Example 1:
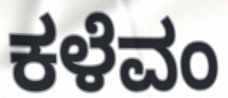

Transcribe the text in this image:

ಕಳೆವಂ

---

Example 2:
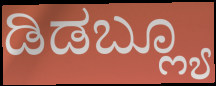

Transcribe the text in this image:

ಡಿಡಬ್ಲ್ಯೂ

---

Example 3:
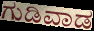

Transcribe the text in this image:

ಗುಡಿವಾಡ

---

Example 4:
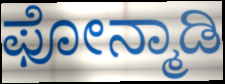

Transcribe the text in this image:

ಫೋನ್ಮಾಡಿ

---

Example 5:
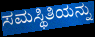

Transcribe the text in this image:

ಸಮಸ್ಥಿತಿಯನ್ನು